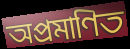
অপ্রমাণিত